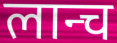
लान्‍च